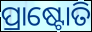
ପ୍ରାଷ୍ଟୋତି